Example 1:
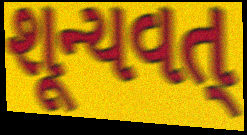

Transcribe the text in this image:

શૂન્યવત્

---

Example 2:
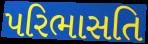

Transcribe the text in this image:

પરિભાસતિ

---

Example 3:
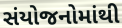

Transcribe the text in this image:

સંયોજનોમાંથી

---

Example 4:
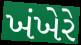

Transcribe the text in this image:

ખંખેરે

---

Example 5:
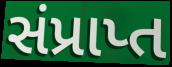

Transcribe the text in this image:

સંપ્રાપ્ત